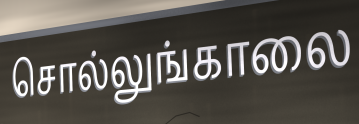
சொல்லுங்காலை